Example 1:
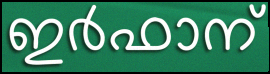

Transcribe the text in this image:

ഇർഫാന്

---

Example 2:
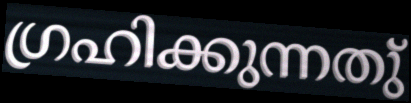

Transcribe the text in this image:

ഗ്രഹിക്കുന്നതു്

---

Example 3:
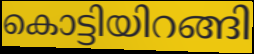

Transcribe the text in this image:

കൊട്ടിയിറങ്ങി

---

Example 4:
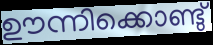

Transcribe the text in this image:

ഊന്നിക്കൊണ്ടു്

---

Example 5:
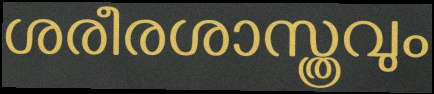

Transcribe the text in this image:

ശരീരശാസ്ത്രവും